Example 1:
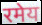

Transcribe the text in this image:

रमेय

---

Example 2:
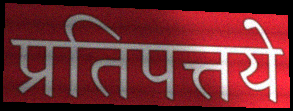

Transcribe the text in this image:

प्रतिपत्तये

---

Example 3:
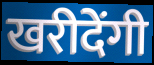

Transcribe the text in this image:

खरीदेंगी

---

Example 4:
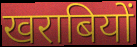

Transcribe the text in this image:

खराबियों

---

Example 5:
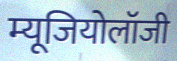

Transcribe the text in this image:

म्यूजियोलॉजी